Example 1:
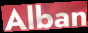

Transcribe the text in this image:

Alban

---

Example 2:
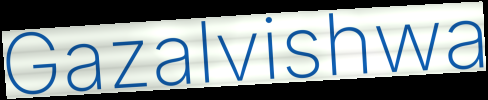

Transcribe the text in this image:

Gazalvishwa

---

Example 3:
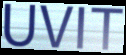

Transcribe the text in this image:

UVIT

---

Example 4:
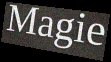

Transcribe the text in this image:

Magie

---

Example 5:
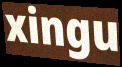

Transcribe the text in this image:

xingu